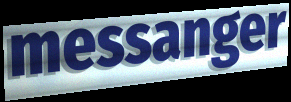
messanger